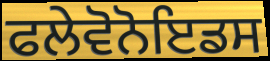
ਫਲੇਵੋਨੋਇਡਸ